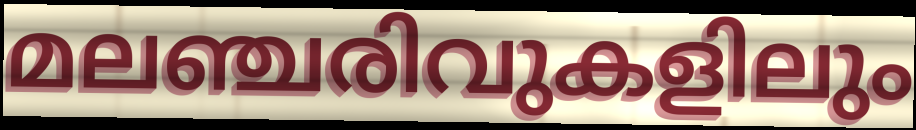
മലഞ്ചരിവുകളിലും